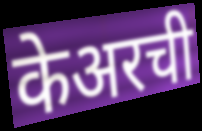
केअरची